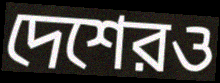
দেশেরও